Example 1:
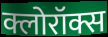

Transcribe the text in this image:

क्लोरॉक्स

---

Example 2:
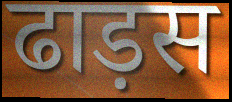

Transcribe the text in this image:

ढाड़स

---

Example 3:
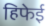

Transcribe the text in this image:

हिफेई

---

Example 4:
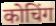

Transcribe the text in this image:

कोचिंग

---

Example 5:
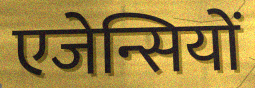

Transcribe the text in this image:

एजेन्सियों